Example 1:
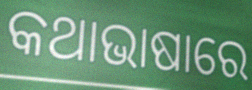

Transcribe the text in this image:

କଥାଭାଷାରେ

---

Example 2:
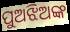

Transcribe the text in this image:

ପୁଅଝିଅଙ୍କ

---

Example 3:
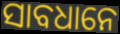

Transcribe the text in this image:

ସାବଧାନେ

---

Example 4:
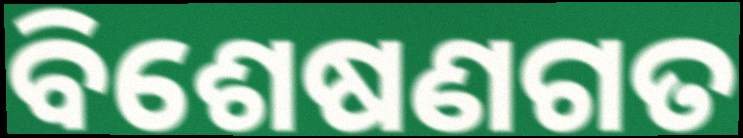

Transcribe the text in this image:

ବିଶେଷଣଗତ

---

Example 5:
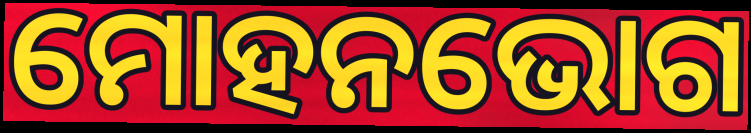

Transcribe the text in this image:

ମୋହନଭୋଗ